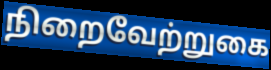
நிறைவேற்றுகை